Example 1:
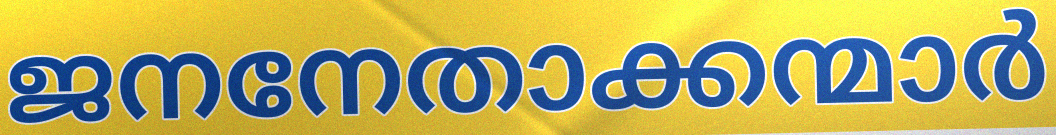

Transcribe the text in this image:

ജനനേതാക്കന്മാർ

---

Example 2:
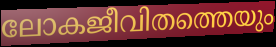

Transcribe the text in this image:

ലോകജീവിതത്തെയും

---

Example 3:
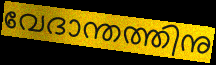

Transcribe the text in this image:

വേദാന്തത്തിനു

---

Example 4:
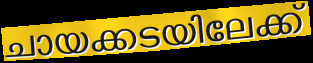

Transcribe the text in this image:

ചായക്കടയിലേക്ക്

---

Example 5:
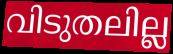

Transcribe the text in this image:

വിടുതലില്ല